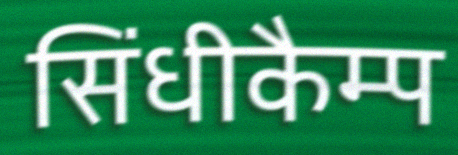
सिंधीकैम्प